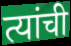
त्यांची